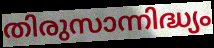
തിരുസാന്നിദ്ധ്യം